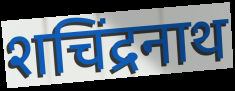
शचिंद्रनाथ